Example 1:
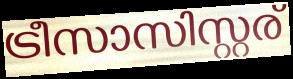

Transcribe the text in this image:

ട്രീസാസിസ്റ്റര്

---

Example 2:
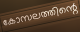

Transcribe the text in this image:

കോസലത്തിന്റെ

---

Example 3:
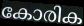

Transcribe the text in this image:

കോരിക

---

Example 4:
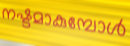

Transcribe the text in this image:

നഷ്ടമാകുമ്പോൾ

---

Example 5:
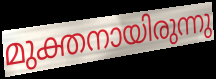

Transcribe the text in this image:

മുക്തനായിരുന്നു